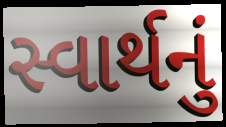
સ્વાર્થનું